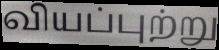
வியப்புற்று